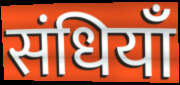
संधियाँ